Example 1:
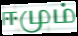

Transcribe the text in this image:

ஈமும்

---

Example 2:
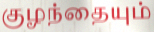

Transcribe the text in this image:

குழந்தையும்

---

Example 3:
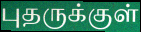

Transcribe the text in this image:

புதருக்குள்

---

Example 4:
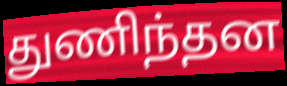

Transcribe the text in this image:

துணிந்தன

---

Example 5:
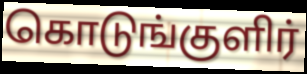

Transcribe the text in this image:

கொடுங்குளிர்